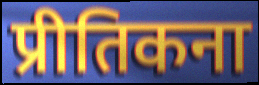
प्रीतिकना